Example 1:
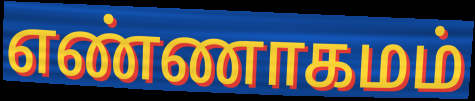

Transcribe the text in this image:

எண்ணாகமம்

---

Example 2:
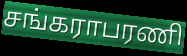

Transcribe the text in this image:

சங்கராபரணி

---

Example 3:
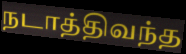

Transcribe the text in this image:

நடாத்திவந்த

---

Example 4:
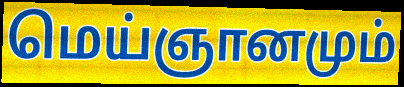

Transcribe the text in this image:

மெய்ஞானமும்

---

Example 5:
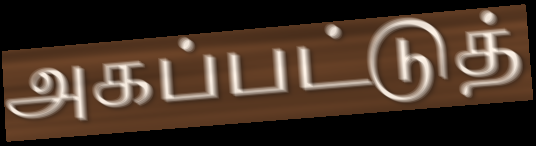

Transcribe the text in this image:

அகப்பட்டுத்